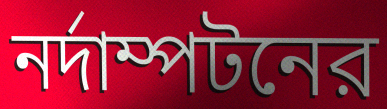
নর্দাম্পটনের